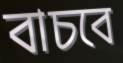
বাচবে